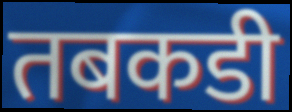
तबकडी